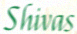
Shivas